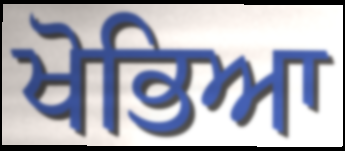
ਖੋਭਿਆ